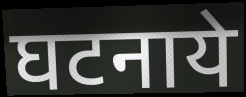
घटनाये